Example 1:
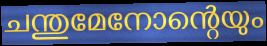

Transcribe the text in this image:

ചന്തുമേനോന്റെയും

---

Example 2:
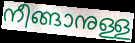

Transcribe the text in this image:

നീങ്ങാനുള്ള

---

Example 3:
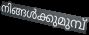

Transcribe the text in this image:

നിങ്ങൾക്കുമുമ്പ്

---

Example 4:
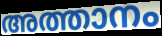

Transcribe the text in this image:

അത്താനം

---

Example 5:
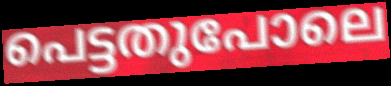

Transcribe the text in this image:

പെട്ടതുപോലെ